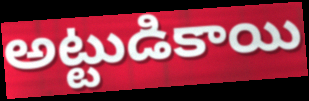
అట్టుడికాయి